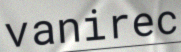
vanirec